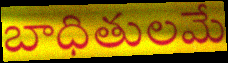
బాధితులమే